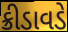
ક્રીડાવડે